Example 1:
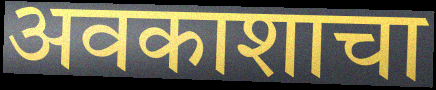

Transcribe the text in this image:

अवकाशाचा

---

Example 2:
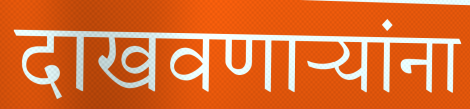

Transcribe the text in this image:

दाखवणाऱ्यांना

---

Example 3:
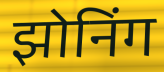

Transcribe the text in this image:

झोनिंग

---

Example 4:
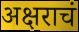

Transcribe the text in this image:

अक्षराचं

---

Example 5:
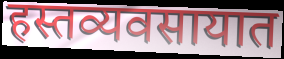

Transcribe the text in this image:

हस्तव्यवसायात